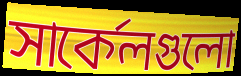
সার্কেলগুলো